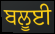
ਬਲੂਈ